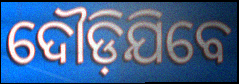
ଦୌଡ଼ିଯିବେ